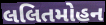
લલિતમોહન